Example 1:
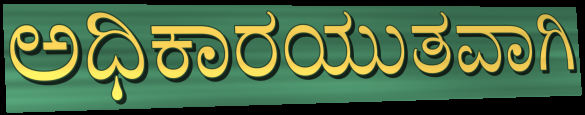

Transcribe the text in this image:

ಅಧಿಕಾರಯುತವಾಗಿ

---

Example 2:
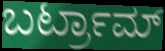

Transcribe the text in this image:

ಬರ್ಟ್ರಾಮ್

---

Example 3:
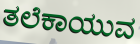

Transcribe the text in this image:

ತಲೆಕಾಯುವ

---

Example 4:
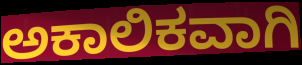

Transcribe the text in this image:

ಅಕಾಲಿಕವಾಗಿ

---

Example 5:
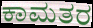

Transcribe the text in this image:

ಕಾಮತರ